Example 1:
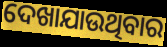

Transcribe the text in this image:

ଦେଖାଯାଉଥିବାର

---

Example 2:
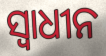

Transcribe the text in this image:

ସ୍ବାଧୀନ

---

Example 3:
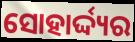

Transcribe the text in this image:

ସୋହାର୍ଦ୍ଦ୍ୟର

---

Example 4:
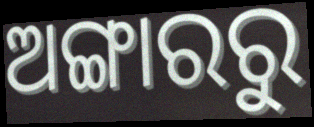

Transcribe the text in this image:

ଅଙ୍ଗାରରୁ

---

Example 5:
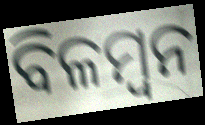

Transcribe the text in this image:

ବିଳମ୍ବନ